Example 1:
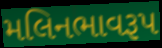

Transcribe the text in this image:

મલિનભાવરૂપ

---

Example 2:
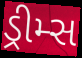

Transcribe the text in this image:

ડ્રીમ્સ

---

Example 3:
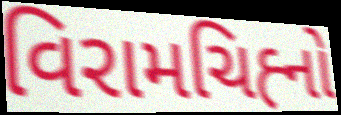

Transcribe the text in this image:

વિરામચિહ્‍નો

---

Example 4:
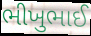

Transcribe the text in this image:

ભીખુભાઈ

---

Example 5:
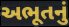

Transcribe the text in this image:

અભૂતનું